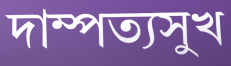
দাম্পত্যসুখ